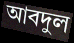
আবদুল